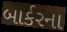
બાર્કરના